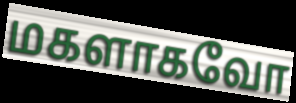
மகளாகவோ